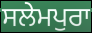
ਸਲੇਮਪੁਰਾ